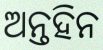
ଅନ୍ତହିନ